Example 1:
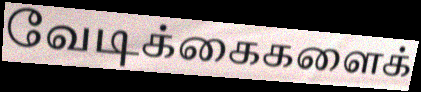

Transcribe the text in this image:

வேடிக்கைகளைக்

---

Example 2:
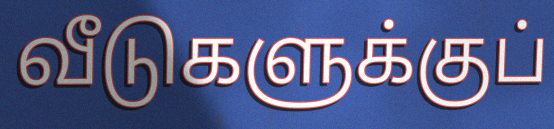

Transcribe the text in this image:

வீடுகளுக்குப்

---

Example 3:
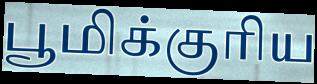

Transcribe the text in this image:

பூமிக்குரிய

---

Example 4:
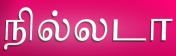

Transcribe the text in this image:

நில்லடா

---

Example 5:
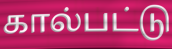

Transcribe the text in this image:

கால்பட்டு